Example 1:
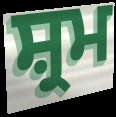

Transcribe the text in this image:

ਸ਼੍ਰਮ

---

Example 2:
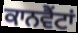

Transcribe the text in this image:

ਕਾਨਵੈਂਟਾਂ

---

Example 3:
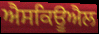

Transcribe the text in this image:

ਐਸਕਿਊਐਲ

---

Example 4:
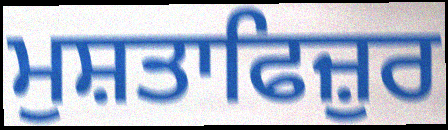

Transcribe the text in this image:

ਮੁਸ਼ਤਾਫਿਜ਼ੁਰ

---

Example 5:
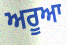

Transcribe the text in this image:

ਅਰੂਆ